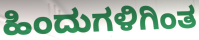
ಹಿಂದುಗಳಿಗಿಂತ